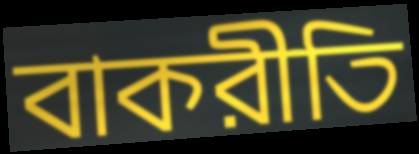
বাকরীতি